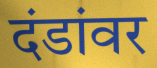
दंडांवर